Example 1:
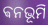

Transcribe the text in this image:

ଵନଭୂମି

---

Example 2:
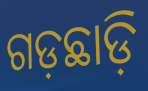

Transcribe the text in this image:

ଗଡ଼ଛାଡ଼ି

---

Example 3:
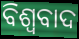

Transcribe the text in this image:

ବିଶ୍ୱବାଦ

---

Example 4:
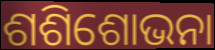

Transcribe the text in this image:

ଶଶିଶୋଭନା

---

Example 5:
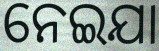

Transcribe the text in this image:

ନେଇଯା